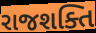
રાજશક્તિ